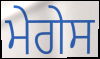
ਮੇਗੇਸ